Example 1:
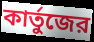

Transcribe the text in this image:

কার্তুজের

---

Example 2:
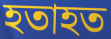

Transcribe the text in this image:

হতাহত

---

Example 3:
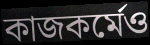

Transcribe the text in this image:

কাজকর্মেও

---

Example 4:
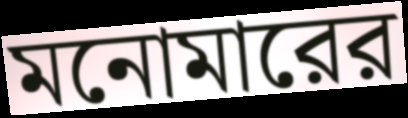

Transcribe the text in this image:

মনোমারের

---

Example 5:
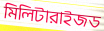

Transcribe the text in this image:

মিলিটারাইজড